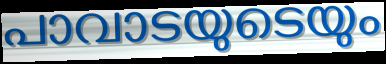
പാവാടയുടെയും